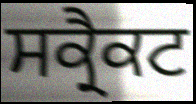
ਸਕ੍ਰੈਕਟ